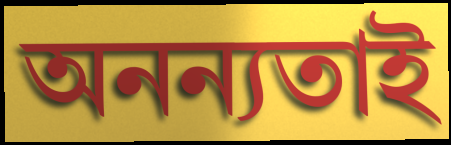
অনন্যতাই